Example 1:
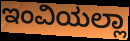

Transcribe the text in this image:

ಇಂವಿಯಲ್ಲಾ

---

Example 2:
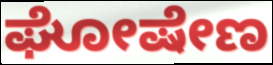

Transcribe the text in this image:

ಘೋಷೇಣ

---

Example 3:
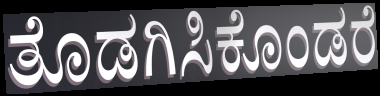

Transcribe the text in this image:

ತೊಡಗಿಸಿಕೊಂಡರೆ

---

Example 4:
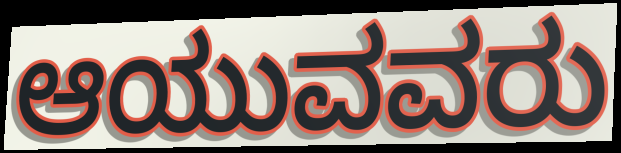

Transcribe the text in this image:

ಆಯುವವರು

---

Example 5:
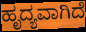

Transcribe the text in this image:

ಹೃದ್ಯವಾಗಿದೆ